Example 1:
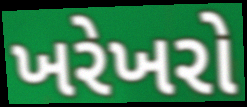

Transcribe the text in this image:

ખરેખરો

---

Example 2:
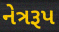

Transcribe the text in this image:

નેત્રરૂપ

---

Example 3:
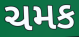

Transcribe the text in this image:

ચમક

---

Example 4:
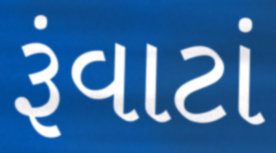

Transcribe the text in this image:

રૂંવાટાં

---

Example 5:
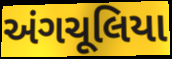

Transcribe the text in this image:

અંગચૂલિયા